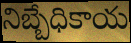
నిబ్బేధికాయ